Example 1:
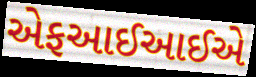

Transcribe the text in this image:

એફઆઈઆઈએ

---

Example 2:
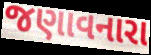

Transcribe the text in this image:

જણાવનારા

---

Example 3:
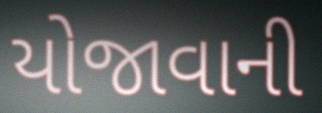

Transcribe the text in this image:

યોજાવાની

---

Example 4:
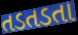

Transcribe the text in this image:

તડતડતા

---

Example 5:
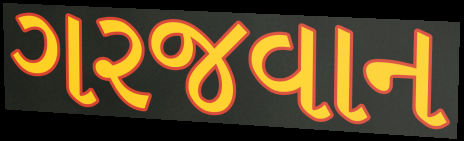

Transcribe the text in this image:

ગરજવાન